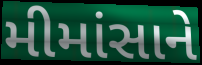
મીમાંસાને